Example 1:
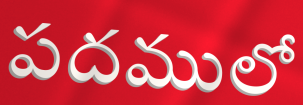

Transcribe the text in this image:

పదములో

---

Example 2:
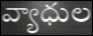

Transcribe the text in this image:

వ్యాధుల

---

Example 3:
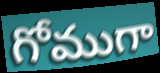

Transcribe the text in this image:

గోముగా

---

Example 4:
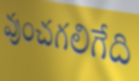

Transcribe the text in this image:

వుంచగలిగేది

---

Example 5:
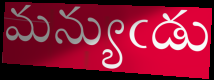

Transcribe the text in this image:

మన్యుఁడు